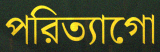
পরিত্যাগো